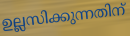
ഉല്ലസിക്കുന്നതിന്